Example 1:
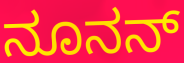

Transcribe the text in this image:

ನೂನನ್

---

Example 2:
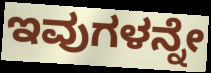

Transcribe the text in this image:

ಇವುಗಳನ್ನೇ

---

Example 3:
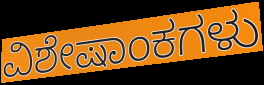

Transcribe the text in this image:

ವಿಶೇಷಾಂಕಗಳು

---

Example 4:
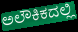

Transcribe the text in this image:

ಅಲೌಕಿಕದಲ್ಲಿ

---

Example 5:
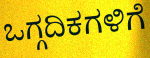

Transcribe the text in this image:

ಒಗ್ಗದಿಕಗಳಿಗೆ